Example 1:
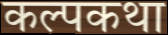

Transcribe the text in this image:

कल्पकथा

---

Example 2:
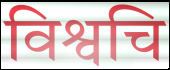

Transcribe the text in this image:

विश्वचि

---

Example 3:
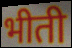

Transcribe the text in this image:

भीती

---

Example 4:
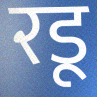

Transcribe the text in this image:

रडू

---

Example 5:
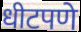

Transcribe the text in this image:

धीटपणे